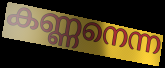
കണ്ണനെന്ന